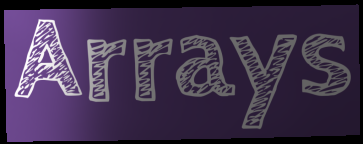
Arrays